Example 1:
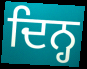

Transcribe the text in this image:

ਦਿਨ੍ਹ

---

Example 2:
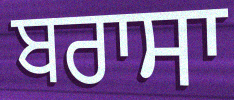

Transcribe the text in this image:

ਬਰਾਸਾ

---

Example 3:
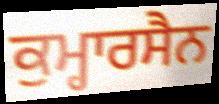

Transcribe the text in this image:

ਕੁਮ੍ਹਾਰਸੈਨ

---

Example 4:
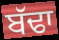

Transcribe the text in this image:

ਬੱਢਾ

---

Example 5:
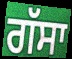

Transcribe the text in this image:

ਗੱਸਾ